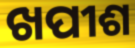
ଖପୀଶ